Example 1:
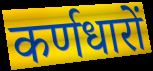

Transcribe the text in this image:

कर्णधारों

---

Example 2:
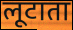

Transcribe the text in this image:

लूटाता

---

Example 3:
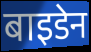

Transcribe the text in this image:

बाइडेन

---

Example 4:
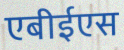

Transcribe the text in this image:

एबीईएस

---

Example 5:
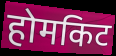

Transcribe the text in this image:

होमकिट